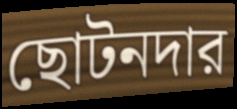
ছোটনদার